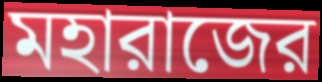
মহারাজের